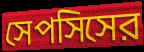
সেপসিসের